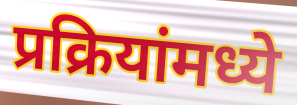
प्रक्रियांमध्ये